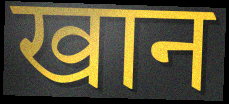
खान